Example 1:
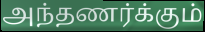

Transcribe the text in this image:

அந்தணர்க்கும்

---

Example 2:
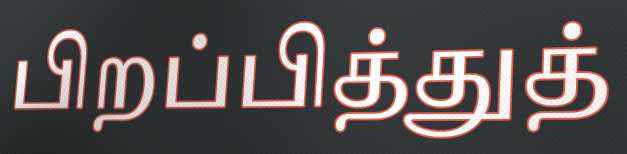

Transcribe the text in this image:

பிறப்பித்துத்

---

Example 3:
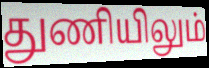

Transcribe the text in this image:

துணியிலும்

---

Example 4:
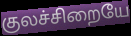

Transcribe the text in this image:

குலச்சிறையே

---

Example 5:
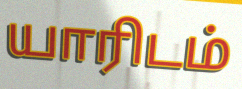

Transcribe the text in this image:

யாரிடம்